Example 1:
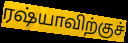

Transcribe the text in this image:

ரஷ்யாவிற்குச்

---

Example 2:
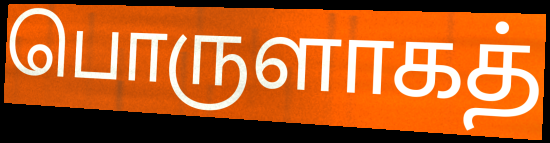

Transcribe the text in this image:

பொருளாகத்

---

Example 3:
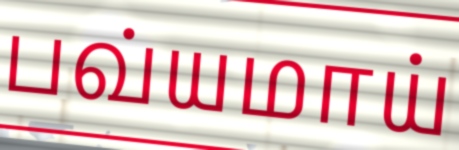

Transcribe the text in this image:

பவ்யமாய்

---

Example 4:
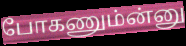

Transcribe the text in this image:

போகணும்ன்னு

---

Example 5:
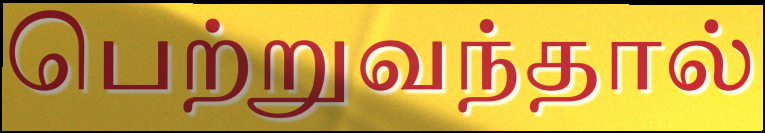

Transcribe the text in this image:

பெற்றுவந்தால்